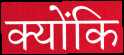
क्योंकि